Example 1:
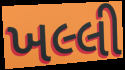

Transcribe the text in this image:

ખલ્લી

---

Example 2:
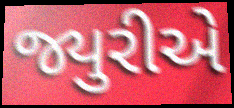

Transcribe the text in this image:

જ્યુરીએ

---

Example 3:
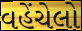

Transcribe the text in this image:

વહેંચેલો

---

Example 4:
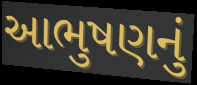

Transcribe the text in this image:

આભુષણનું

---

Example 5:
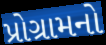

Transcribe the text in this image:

પ્રોગ્રામનો